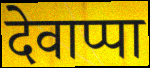
देवाप्पा